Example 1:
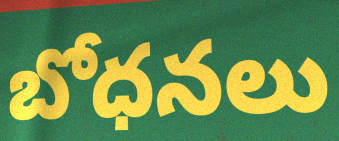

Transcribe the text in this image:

బోధనలు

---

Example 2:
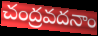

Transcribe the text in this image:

చంద్రవదనాం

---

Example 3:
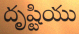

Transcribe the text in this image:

దృష్టియు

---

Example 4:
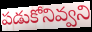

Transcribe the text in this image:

పడుకోనివ్వని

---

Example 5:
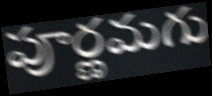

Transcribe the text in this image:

పూర్ణమగు